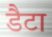
डैटा